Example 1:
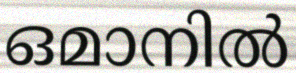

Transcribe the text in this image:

ഒമാനിൽ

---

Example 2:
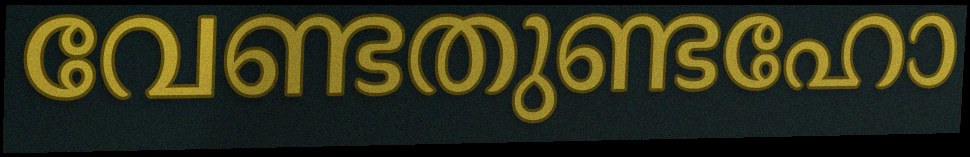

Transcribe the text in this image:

വേണ്ടതുണ്ടഹോ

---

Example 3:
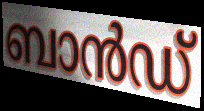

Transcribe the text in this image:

ബാൻഡ്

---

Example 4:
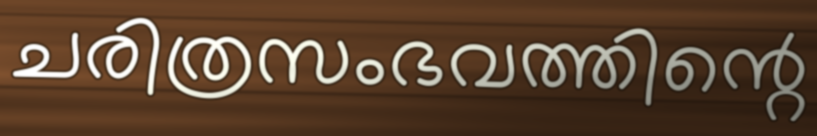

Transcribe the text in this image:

ചരിത്രസംഭവത്തിന്റെ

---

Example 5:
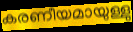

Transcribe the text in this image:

കരണീയമായുള്ളു